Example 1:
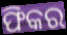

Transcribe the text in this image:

ଫିକର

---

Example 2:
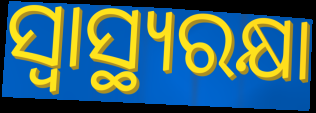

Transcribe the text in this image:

ସ୍ବାସ୍ଥ୍ୟରକ୍ଷା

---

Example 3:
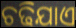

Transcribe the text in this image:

ଚଢିଯାଏ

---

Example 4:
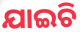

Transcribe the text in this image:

ଯାଇଚି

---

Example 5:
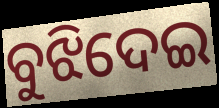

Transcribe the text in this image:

ବୁଝିଦେଇ